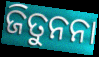
ଜିତୁନନା